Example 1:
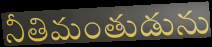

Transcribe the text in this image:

నీతిమంతుడును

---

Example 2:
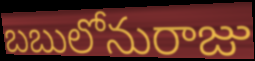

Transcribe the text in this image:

బబులోనురాజు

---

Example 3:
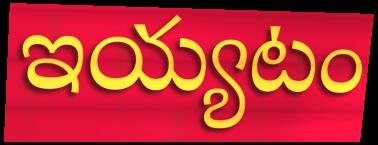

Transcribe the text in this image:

ఇయ్యటం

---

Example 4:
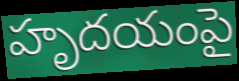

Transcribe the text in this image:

హృదయంపై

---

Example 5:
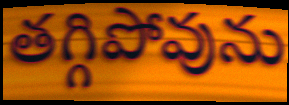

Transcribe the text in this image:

తగ్గిపోవును